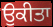
ਉਕੀਤਾ